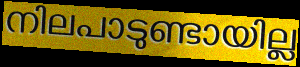
നിലപാടുണ്ടായില്ല